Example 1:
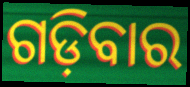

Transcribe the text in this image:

ଗଡ଼ିବାର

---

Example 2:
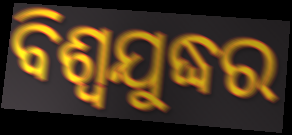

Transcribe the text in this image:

ବିଶ୍ବଯୁଦ୍ଧର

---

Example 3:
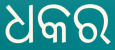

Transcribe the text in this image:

ଧକର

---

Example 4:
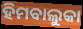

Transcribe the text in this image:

ହିମବାଲୁକା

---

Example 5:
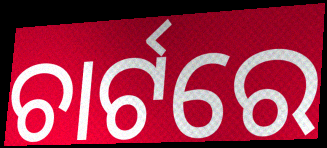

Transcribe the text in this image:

ଚାର୍ଟରେ